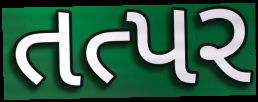
તત્પર